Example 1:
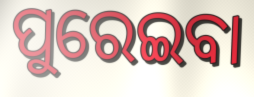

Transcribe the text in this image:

ପୁରେଇବା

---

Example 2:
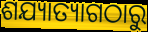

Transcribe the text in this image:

ଶଯ୍ୟାତ୍ୟାଗଠାରୁ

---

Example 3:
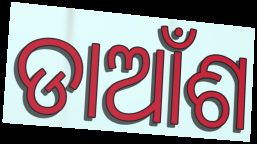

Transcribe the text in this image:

ଡାଆଁଶ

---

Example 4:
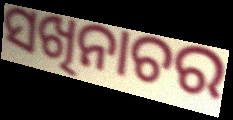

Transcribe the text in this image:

ସଖିନାଚର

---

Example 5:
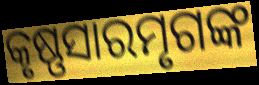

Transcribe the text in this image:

କୃଷ୍ଣସାରମୃଗଙ୍କ